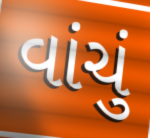
વાંચું